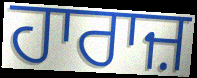
ਹਾਰਾਜ਼